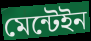
মেন্টেইন